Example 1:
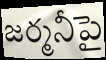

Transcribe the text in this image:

జర్మనీపై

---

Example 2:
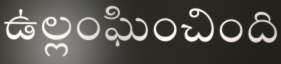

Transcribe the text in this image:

ఉల్లంఘించింది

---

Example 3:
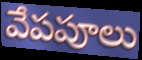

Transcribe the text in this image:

వేపపూలు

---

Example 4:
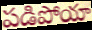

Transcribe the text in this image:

పడిపోయా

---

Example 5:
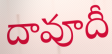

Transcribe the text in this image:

దావూదీ